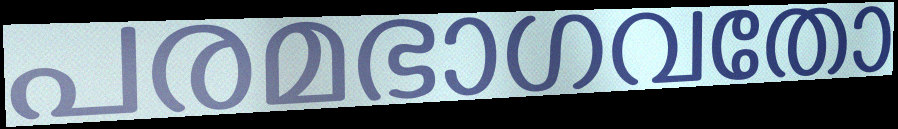
പരമഭാഗവതോ